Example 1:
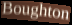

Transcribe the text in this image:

Boughton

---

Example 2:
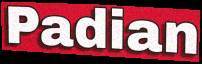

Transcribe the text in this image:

Padian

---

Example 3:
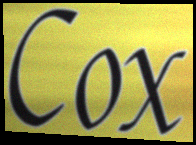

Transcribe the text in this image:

Cox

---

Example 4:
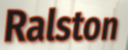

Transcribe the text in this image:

Ralston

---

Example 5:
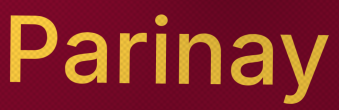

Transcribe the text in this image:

Parinay